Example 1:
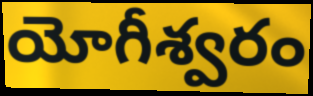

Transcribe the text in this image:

యోగీశ్వరం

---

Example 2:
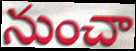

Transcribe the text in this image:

నుంచా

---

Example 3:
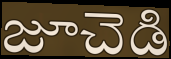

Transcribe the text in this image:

జూచెడి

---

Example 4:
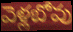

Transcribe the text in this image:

వెళ్లబోవు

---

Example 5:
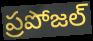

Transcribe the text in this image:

ప్రపోజల్